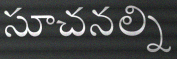
సూచనల్ని